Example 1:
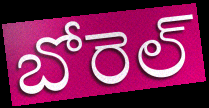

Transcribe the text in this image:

బోరెల్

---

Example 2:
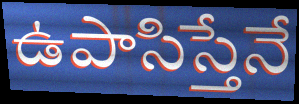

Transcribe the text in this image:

ఉపాసిస్తేనే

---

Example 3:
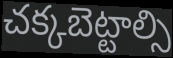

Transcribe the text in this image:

చక్కబెట్టాల్సి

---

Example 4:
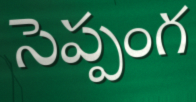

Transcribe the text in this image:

సెప్పంగ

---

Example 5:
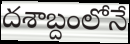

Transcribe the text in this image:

దశాబ్దంలోనే